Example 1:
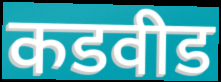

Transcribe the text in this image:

कडवीड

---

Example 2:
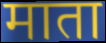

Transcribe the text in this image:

माता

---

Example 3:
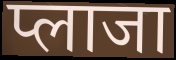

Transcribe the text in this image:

प्लाजा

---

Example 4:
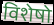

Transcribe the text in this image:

विशेषो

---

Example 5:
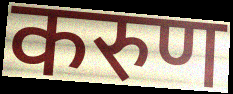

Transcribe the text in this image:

करुण